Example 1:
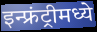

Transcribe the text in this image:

इन्फ्रंट्रीमध्ये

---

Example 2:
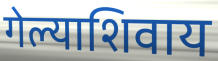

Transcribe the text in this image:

गेल्याशिवाय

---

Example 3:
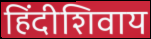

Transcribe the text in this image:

हिंदीशिवाय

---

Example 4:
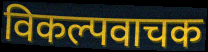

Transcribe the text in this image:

विकल्पवाचक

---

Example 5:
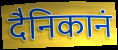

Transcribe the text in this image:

दैनिकानं